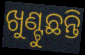
ଖୁଣ୍ଟୁଛନ୍ତି